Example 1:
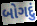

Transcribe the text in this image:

બોગદું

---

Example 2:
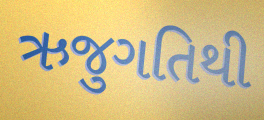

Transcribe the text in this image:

ઋજુગતિથી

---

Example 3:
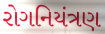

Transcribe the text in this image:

રોગનિયંત્રણ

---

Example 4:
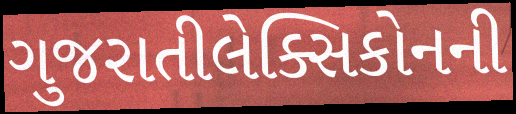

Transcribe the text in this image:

ગુજરાતીલેક્સિકોનની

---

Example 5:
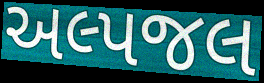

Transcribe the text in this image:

અલ્પજલ